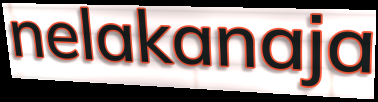
nelakanaja